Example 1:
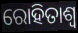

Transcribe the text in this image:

ରୋହିତାଶ୍ୱ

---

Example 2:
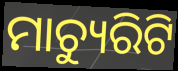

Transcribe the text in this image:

ମାଚ୍ୟୁରିଟି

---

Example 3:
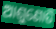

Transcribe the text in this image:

ଆଶୁଣୋତି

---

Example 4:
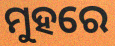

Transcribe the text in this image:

ମୁହରେ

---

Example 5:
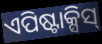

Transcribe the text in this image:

ଏପିଷ୍ଟାକ୍ସିସ୍